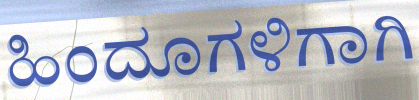
ಹಿಂದೂಗಳಿಗಾಗಿ